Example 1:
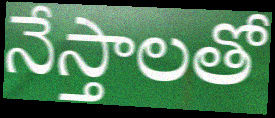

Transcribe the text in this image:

నేస్తాలతో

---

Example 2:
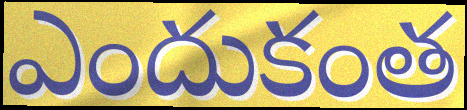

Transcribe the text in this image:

ఎందుకంత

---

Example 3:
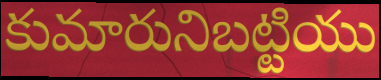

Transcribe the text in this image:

కుమారునిబట్టియు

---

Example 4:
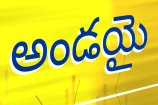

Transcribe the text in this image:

అండయై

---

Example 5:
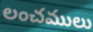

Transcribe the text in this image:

లంచములు